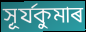
সূৰ্যকুমাৰ